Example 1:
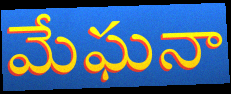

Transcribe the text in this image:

మేఘనా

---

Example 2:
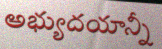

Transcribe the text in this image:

అభ్యుదయాన్నీ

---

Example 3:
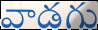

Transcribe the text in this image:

వాడగు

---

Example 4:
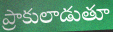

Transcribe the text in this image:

ప్రాకులాడుతూ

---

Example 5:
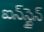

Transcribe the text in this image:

ఐన్‌స్టైన్